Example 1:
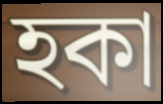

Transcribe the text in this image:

হকা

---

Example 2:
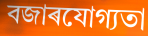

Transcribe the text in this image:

বজাৰযোগ্যতা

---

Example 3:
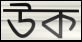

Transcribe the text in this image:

উক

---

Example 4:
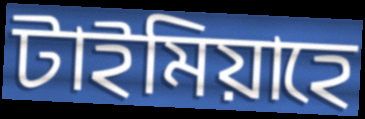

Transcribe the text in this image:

টাইমিয়াহে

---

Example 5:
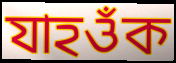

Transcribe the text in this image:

যাহওঁক